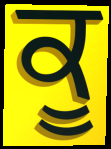
ਕੂ